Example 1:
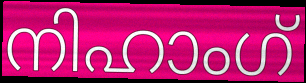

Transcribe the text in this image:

നിഹാംഗ്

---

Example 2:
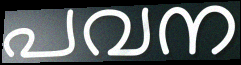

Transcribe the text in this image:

പവന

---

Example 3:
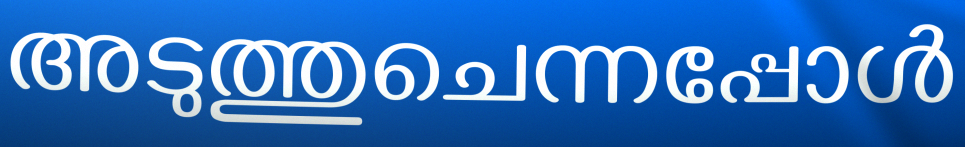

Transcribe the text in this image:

അടുത്തുചെന്നപ്പോൾ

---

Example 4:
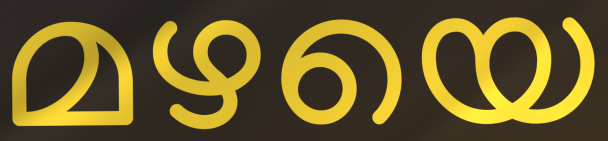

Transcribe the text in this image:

മഴയെ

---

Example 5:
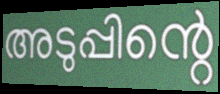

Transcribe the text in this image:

അടുപ്പിന്റെ